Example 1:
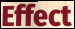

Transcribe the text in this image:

Effect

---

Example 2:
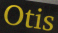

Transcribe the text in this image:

Otis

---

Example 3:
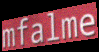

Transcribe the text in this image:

mfalme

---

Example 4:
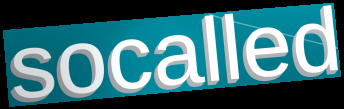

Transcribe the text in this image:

socalled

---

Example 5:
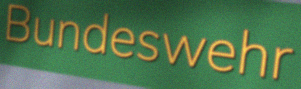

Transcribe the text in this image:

Bundeswehr